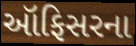
ઑફિસરના